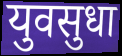
युवसुधा